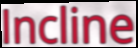
Incline